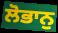
ਲੋਭਾਨੁ